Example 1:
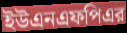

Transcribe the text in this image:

ইউএনএফপিএর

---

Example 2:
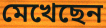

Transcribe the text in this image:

মেখেছেন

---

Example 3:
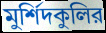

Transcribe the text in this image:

মুর্শিদকুলির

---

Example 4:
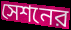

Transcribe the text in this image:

সেশনের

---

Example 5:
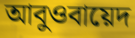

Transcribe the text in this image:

আবুওবায়েদ